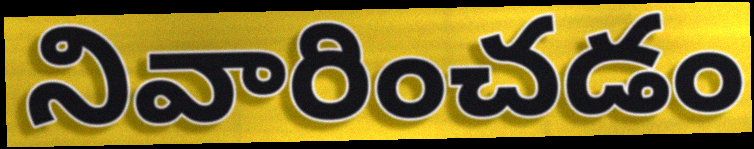
నివారించడం